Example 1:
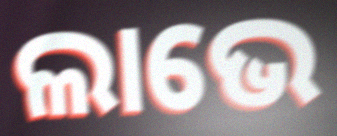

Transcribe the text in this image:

ଲାଭେ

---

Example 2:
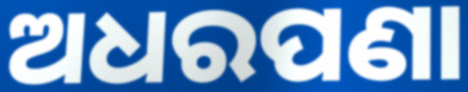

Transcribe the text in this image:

ଅଧରପଣା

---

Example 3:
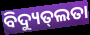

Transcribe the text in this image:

ବିଦ୍ୟୁତ୍‌ଲତା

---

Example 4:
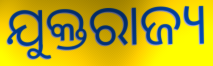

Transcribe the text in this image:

ଯୁକ୍ତରାଜ୍ୟ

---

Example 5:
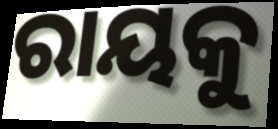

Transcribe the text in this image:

ରାୟକୁ